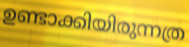
ഉണ്ടാക്കിയിരുന്നത്ര